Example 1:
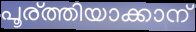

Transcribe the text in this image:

പൂര്ത്തിയാക്കാന്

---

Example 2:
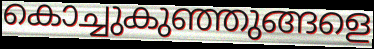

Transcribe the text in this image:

കൊച്ചുകുഞ്ഞുങ്ങളെ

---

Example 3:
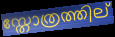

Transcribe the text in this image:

സ്തോത്രത്തില്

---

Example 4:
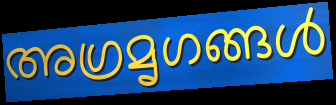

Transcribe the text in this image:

അഗ്രമൃഗങ്ങൾ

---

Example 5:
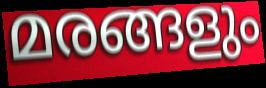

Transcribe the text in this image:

മരങ്ങളും